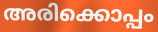
അരിക്കൊപ്പം